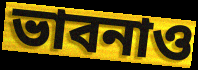
ভাবনাও